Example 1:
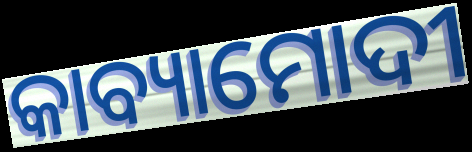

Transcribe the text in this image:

କାବ୍ୟାମୋଦୀ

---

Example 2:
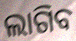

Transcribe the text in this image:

ଲାଗିବ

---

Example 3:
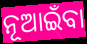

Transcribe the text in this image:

ନୂଆଇଁବା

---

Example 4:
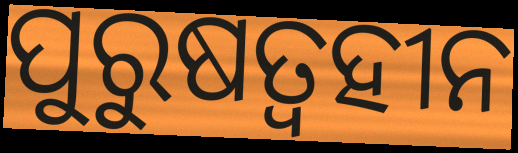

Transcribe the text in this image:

ପୁରୁଷତ୍ୱହୀନ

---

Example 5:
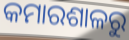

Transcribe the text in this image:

କମାରଶାଳରୁ